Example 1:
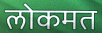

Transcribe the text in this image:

लोकमत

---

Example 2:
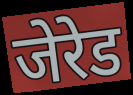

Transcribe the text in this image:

जेरेड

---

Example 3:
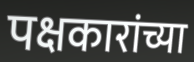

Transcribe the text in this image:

पक्षकारांच्या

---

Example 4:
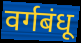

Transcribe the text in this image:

वर्गबंधू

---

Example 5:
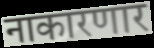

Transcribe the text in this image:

नाकारणार